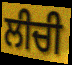
ਲੀਚੀ